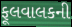
ફૂલવાલકની